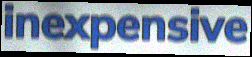
inexpensive